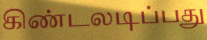
கிண்டலடிப்பது